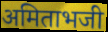
अमिताभजी